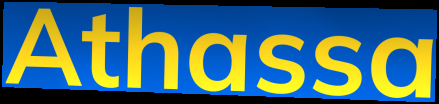
Athassa